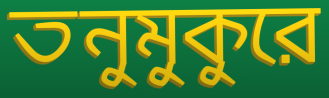
তনুমুকুরে